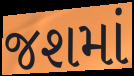
જશમાં